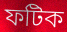
ফটিক